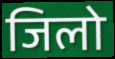
जिलो